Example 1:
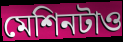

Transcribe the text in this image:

মেশিনটাও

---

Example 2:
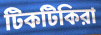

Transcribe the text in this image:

টিকটিকিরা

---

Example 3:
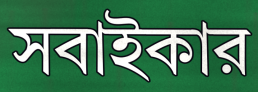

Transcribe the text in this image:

সবাইকার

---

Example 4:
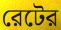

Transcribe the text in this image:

রেটের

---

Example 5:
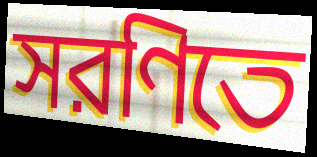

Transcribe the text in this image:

সরণিতে